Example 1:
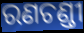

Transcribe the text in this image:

ରଣଚଣ୍ଡୀ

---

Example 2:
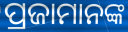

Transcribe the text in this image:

ପ୍ରଜାମାନଙ୍କ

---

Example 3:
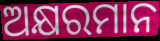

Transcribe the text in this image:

ଅକ୍ଷରମାନ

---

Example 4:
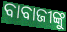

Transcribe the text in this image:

ବାବାଜୀଙ୍କୁ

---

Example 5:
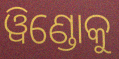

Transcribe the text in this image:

ୱିଣ୍ଡୋକୁ